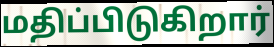
மதிப்பிடுகிறார்